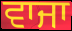
ਵਾਜਾ